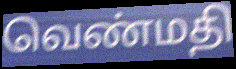
வெண்மதி